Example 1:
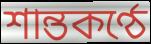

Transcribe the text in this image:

শান্তকণ্ঠে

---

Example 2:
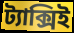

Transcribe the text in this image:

ট্যাক্সিই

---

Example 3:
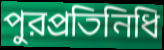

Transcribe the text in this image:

পুরপ্রতিনিধি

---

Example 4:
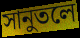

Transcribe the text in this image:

সানুতলে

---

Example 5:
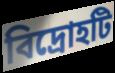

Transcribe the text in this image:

বিদ্রোহটি